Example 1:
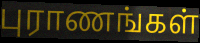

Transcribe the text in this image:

புராணங்கள்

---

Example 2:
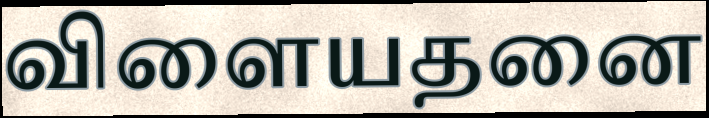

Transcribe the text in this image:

விளையதனை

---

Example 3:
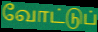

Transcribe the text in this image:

வோட்டுப்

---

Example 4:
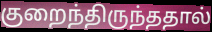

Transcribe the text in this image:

குறைந்திருந்ததால்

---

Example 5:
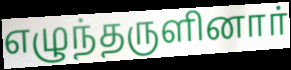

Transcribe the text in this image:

எழுந்தருளினார்